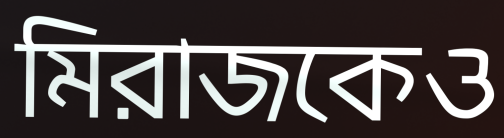
মিরাজকেও